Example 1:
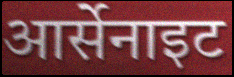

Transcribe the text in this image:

आर्सेनाइट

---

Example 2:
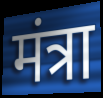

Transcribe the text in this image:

मंत्रा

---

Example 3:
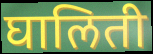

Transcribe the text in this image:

घालिती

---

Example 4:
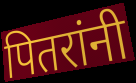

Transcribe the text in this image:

पितरांनी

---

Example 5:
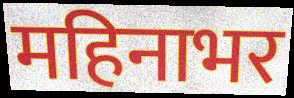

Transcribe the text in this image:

महिनाभर